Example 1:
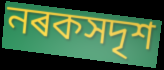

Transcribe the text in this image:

নৰকসদৃশ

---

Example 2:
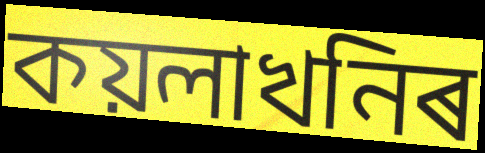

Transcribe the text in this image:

কয়লাখনিৰ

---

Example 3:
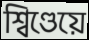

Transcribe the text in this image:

শ্বিণ্ডেয়ে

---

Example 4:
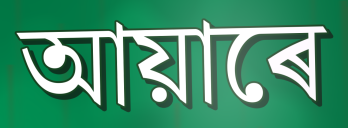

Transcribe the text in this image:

আয়াৰে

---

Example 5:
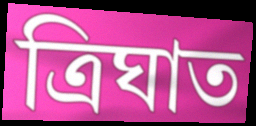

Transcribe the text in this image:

ত্ৰিঘাত